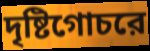
দৃষ্টিগোচরে